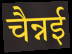
चैन्नई